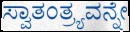
ಸ್ವಾತಂತ್ರ್ಯವನ್ನೇ